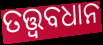
ତତ୍ତ୍ୱବଧାନ